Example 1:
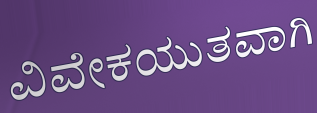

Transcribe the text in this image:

ವಿವೇಕಯುತವಾಗಿ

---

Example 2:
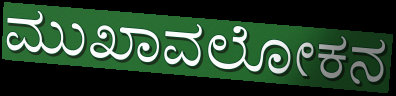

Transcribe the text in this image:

ಮುಖಾವಲೋಕನ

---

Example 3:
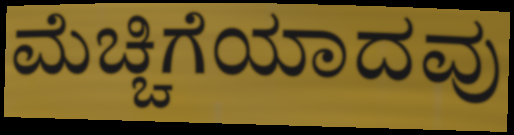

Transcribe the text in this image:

ಮೆಚ್ಚಿಗೆಯಾದವು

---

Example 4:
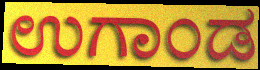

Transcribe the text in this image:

ಉಗಾಂಡ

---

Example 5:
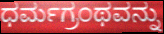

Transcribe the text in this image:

ಧರ್ಮಗ್ರಂಥವನ್ನು